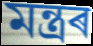
মন্ত্ৰৰ